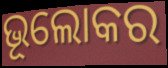
ଭୂଲୋକର